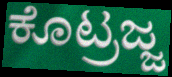
ಕೊಟ್ರಜ್ಜ